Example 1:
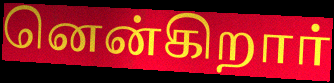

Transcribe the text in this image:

னென்கிறார்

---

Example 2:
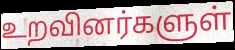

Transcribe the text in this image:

உறவினர்களுள்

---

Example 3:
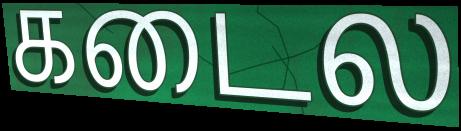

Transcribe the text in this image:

கடைல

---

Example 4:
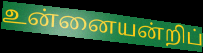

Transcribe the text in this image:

உன்னையன்றிப்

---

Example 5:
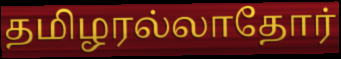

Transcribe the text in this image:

தமிழரல்லாதோர்